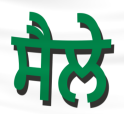
ਸੈਲੇ